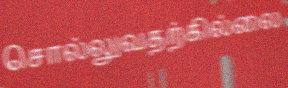
சொல்லுவதற்கில்லை